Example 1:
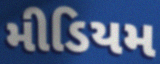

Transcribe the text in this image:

મીડિયમ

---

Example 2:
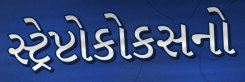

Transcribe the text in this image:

સ્ટ્રેપ્ટોકોકસનો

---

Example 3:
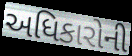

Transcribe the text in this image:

અધિકારોની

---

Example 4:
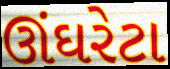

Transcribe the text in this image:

ઊંઘરેટા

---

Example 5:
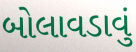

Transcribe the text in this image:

બોલાવડાવું